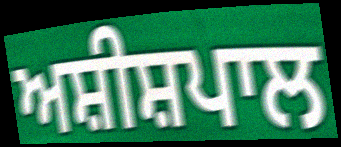
ਅਸ਼ੀਸ਼ਪਾਲ